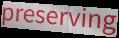
preserving